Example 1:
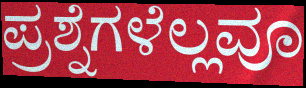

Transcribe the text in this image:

ಪ್ರಶ್ನೆಗಳೆಲ್ಲವೂ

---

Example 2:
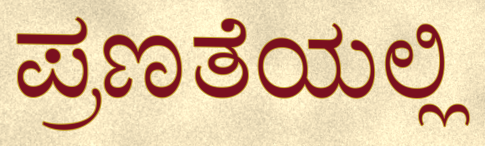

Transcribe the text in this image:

ಪ್ರಣತೆಯಲ್ಲಿ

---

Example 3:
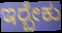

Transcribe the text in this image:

ಇರ‍್ಬೇಕು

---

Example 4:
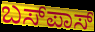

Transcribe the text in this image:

ಬಸ್‍ಪಾಸ್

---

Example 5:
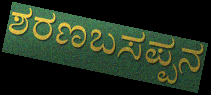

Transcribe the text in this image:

ಶರಣಬಸಪ್ಪನ